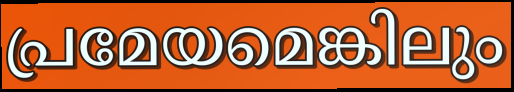
പ്രമേയമെങ്കിലും